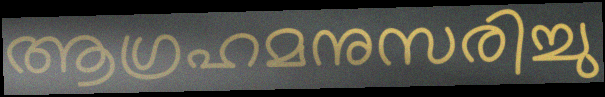
ആഗ്രഹമനുസരിച്ചു